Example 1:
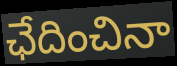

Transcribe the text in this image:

ఛేదించినా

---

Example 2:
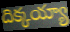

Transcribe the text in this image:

దిక్కయ్యా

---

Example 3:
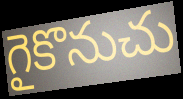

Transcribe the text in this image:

గైకొనుచు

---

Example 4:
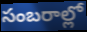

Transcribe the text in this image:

సంబరాల్లో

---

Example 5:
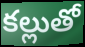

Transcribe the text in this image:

కల్లుతో